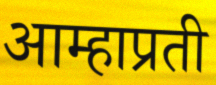
आम्हाप्रती